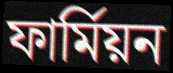
ফাৰ্মিয়ন